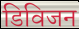
डिविजन